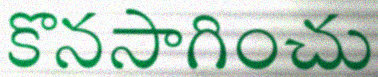
కొనసాగించు